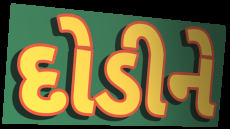
દોડીને